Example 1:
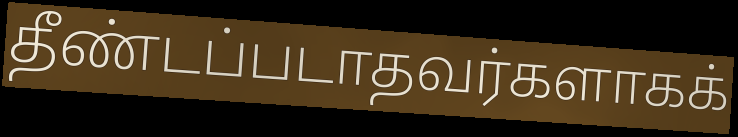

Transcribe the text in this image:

தீண்டப்படாதவர்களாகக்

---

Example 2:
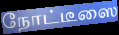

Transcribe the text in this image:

நோட்டீஸை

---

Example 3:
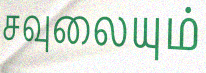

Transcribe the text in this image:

சவுலையும்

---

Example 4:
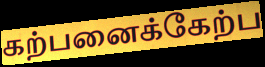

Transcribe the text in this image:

கற்பனைக்கேற்ப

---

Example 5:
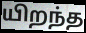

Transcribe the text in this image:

யிறந்த